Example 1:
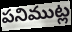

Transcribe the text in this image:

పనిముట్ల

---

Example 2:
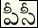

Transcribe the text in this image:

పీసీ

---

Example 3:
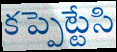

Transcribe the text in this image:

కప్పెట్టేసి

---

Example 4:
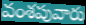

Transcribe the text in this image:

వంశపువారు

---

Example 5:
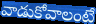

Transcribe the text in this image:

వాడుకోవాలంటే